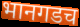
भानगडच